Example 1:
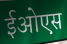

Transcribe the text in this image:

ईओएस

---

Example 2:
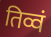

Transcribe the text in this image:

तिव्वं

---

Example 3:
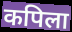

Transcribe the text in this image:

कपिला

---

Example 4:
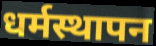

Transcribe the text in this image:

धर्मस्थापन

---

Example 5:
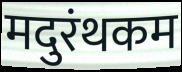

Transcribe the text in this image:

मदुरंथकम